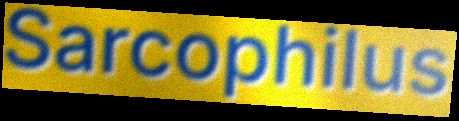
Sarcophilus